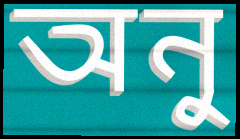
অনু